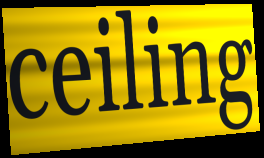
ceiling